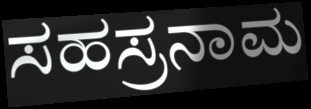
ಸಹಸ್ರನಾಮ